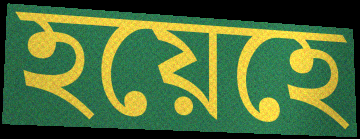
হয়েহে